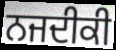
ਨਜਦੀਕੀ